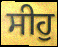
ਸੀਹੁ